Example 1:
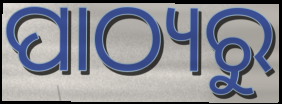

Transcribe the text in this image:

ପାଠ୍ୟରୁ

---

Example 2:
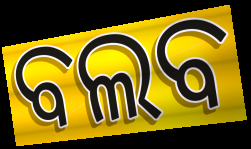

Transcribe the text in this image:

ବଲବ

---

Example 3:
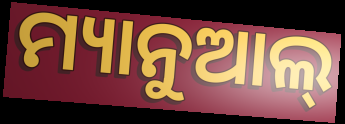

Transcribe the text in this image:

ମ୍ୟାନୁଆଲ୍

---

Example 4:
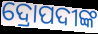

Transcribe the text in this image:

ଦ୍ରୋପଦୀଙ୍କ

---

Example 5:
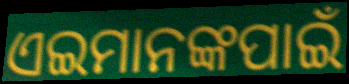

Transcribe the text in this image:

ଏଇମାନଙ୍କପାଇଁ